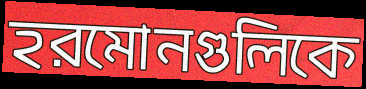
হরমোনগুলিকে